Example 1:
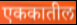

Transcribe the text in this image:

एककातील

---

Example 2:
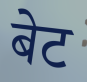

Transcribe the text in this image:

बेट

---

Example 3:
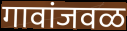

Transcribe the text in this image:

गावांजवळ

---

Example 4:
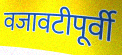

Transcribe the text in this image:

वजावटीपूर्वी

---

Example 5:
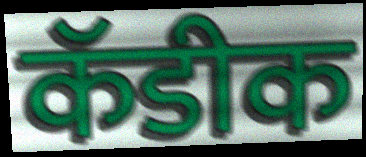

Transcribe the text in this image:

कॅडीक